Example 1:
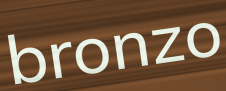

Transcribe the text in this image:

bronzo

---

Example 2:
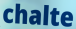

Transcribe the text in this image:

chalte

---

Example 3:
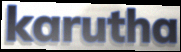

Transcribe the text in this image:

karutha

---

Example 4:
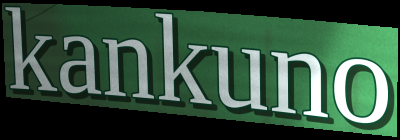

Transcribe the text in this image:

kankuno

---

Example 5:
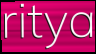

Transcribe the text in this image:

ritya